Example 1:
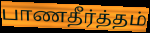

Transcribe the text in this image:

பாணதீர்த்தம்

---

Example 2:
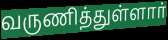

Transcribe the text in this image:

வருணித்துள்ளார்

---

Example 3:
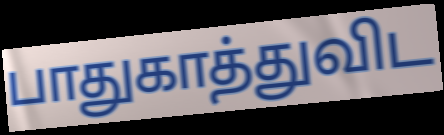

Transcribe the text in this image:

பாதுகாத்துவிட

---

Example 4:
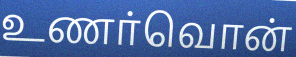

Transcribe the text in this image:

உணர்வொன்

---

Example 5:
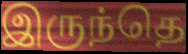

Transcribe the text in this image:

இருந்தெ